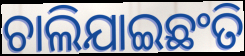
ଚାଲିଯାଇଛଂତି